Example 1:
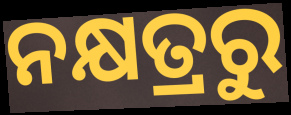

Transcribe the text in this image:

ନକ୍ଷତ୍ରରୁ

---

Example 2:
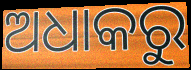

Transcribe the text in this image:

ଅଧାକରୁ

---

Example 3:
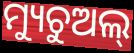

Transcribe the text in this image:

ମ୍ୟୁଚୁଅଲ୍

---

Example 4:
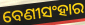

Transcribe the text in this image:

ବେଣୀସଂହାର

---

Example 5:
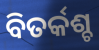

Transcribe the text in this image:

ବିତର୍କଶ୍ଚ